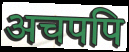
अचपपि